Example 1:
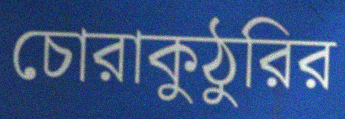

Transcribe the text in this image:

চোরাকুঠুরির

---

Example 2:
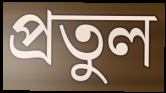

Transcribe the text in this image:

প্রতুল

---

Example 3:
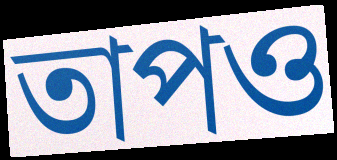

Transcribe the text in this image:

তাপও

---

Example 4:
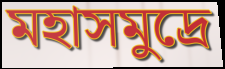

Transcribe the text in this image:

মহাসমুদ্রে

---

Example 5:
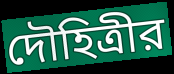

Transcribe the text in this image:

দৌহিত্রীর